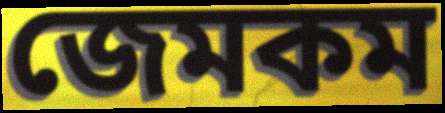
জেমকম